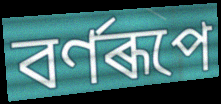
বৰ্ণৰূপে